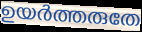
ഉയർത്തരുതേ